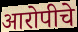
आरोपीचे